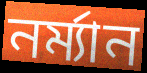
নর্ম্যান